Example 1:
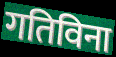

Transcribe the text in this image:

गतिविना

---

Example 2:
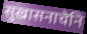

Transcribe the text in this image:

सुखासनाचेनि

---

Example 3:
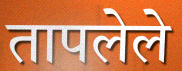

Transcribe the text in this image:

तापलेले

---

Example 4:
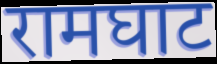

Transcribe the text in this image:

रामघाट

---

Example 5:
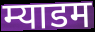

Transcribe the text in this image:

म्याडम